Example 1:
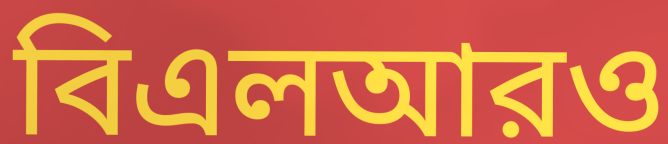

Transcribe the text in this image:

বিএলআরও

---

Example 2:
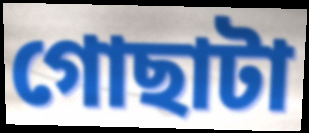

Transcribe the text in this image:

গোছাটা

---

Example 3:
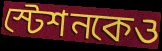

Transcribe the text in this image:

স্টেশনকেও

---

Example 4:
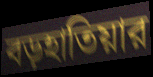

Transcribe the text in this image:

বড়হাতিয়ার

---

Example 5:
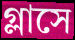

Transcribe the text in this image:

গ্লাসে